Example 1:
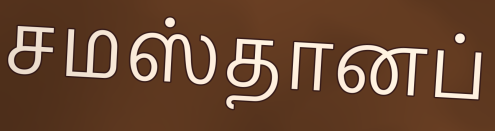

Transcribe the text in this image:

சமஸ்தானப்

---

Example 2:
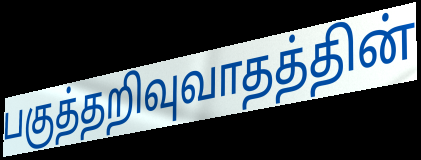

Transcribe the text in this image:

பகுத்தறிவுவாதத்தின்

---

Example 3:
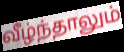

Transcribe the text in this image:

வீழ்ந்தாலும்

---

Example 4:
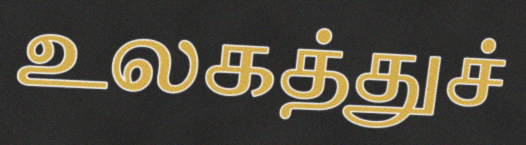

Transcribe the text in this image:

உலகத்துச்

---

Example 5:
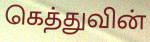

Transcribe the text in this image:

கெத்துவின்